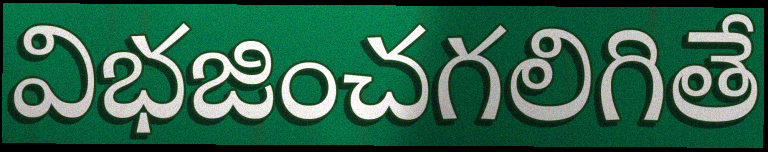
విభజించగలిగితే